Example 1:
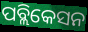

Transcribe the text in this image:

ପବ୍ଲିକେସନ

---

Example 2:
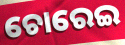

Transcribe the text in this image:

ଚୋରେଇ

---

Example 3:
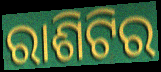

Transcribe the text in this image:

ରାଶିଟିର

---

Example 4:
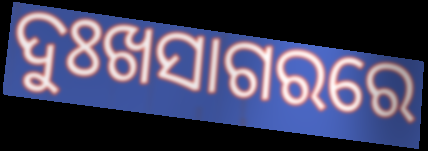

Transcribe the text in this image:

ଦୁଃଖସାଗରରେ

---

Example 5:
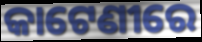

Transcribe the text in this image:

କାଟେଣୀରେ